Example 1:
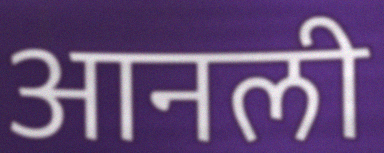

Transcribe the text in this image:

आनली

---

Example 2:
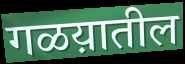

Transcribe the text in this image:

गळय़ातील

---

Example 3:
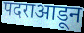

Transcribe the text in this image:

पदराआडून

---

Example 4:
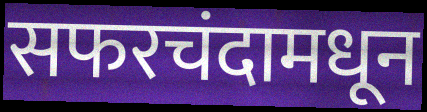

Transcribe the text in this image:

सफरचंदामधून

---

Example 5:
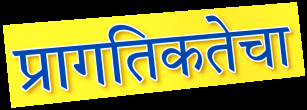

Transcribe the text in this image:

प्रागतिकतेचा